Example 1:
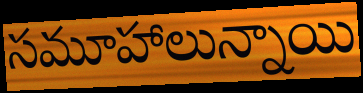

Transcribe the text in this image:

సమూహాలున్నాయి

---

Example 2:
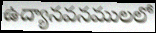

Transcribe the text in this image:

ఉద్యానవనములలో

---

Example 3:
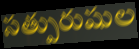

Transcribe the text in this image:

సత్పురుషుల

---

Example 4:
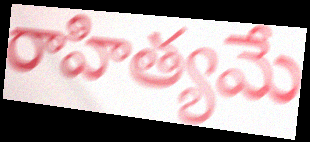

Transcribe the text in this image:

రాహిత్యమే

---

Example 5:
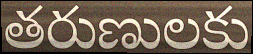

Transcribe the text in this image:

తరుణులకు